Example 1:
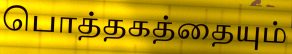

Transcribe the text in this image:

பொத்தகத்தையும்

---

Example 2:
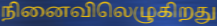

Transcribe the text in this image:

நினைவிலெழுகிறது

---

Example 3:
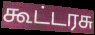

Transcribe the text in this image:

கூட்டரசு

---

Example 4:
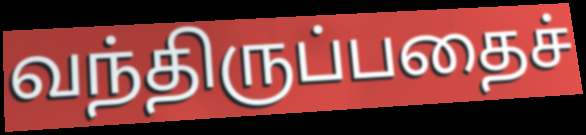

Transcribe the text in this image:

வந்திருப்பதைச்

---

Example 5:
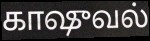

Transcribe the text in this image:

காஷுவல்